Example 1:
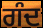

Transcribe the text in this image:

ਗੰਦ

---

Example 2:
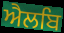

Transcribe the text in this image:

ਐਲਬਿ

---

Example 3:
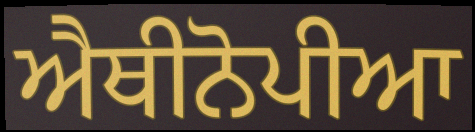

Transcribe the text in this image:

ਐਥੀਨੋਪੀਆ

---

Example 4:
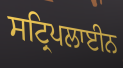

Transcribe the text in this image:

ਸਟ੍ਰਿਪਲਾਈਨ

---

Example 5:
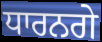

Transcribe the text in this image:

ਧਾਰਨਗੇ